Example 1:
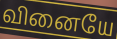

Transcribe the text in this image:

வினையே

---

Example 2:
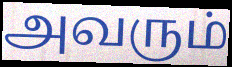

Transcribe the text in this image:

அவரும்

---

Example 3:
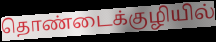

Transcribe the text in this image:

தொண்டைக்குழியில்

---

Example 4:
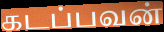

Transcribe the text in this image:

கடப்பவன்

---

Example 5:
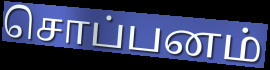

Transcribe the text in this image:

சொப்பனம்